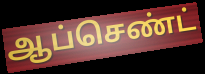
ஆப்செண்ட்